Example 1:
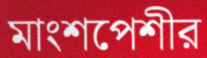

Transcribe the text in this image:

মাংশপেশীর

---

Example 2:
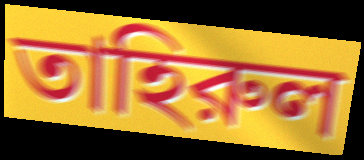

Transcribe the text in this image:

তাহিরুল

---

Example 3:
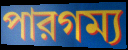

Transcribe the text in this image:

পারগম্য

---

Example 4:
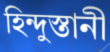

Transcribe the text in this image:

হিন্দুস্তানী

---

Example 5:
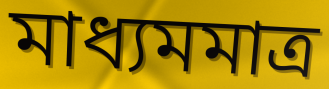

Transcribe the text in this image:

মাধ্যমমাত্র